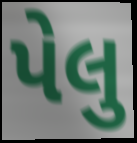
પેલુ